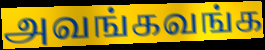
அவங்கவங்க